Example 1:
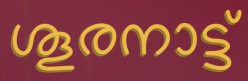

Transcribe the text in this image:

ശൂരനാട്ട്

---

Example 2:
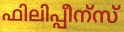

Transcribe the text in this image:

ഫിലിപ്പീന്സ്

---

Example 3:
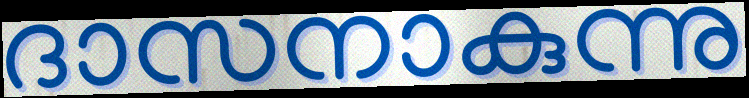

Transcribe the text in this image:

ദാസനാകുന്നു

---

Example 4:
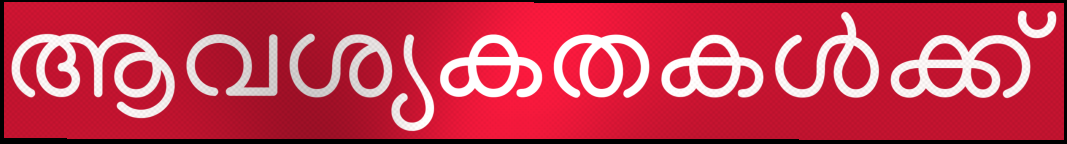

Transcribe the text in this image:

ആവശ്യകതകൾക്ക്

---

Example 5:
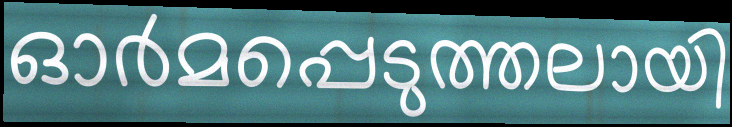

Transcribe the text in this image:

ഓർമപ്പെടുത്തലായി